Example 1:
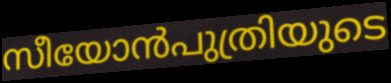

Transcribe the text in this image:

സീയോൻപുത്രിയുടെ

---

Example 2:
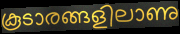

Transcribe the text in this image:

കൂടാരങ്ങളിലാണു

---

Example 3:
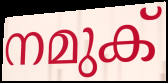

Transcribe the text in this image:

നമുക്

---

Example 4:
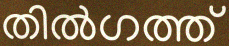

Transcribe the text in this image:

തിൽഗത്ത്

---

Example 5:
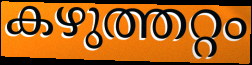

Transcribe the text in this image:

കഴുത്തറ്റം